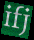
ifj